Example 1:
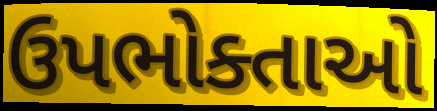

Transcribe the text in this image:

ઉપભોક્તાઓ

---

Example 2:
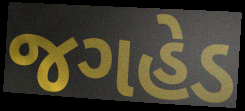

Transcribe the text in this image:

જગહેડ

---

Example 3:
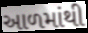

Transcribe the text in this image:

આળમાંથી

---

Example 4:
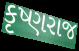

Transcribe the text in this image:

કૃષ્ણરાજ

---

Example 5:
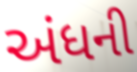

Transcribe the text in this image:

અંધની